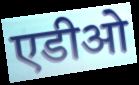
एडीओ